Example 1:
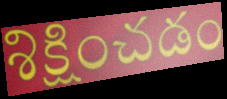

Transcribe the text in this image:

శిక్షించడం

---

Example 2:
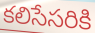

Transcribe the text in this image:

కలిసేసరికి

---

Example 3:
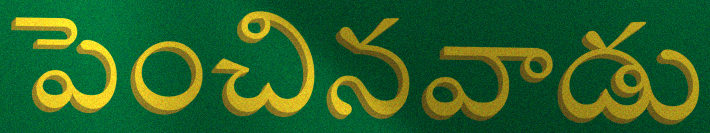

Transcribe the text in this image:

పెంచినవాడు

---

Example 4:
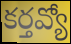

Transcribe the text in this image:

కర్తవ్యో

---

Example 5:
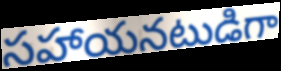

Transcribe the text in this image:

సహాయనటుడిగా